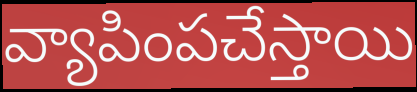
వ్యాపింపచేస్తాయి